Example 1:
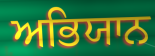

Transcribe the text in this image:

ਅਭਿਯਾਨ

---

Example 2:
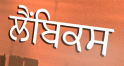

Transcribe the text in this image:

ਲੈਂਬਿਕਸ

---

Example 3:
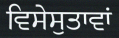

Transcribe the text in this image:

ਵਿਸੇਸੁਤਾਵਾਂ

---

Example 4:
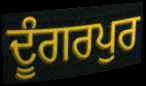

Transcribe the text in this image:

ਦੂੰਗਰਪੁਰ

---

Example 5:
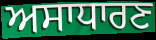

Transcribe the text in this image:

ਅਸਾਧਾਰਣ